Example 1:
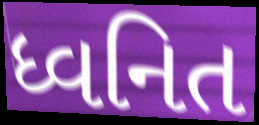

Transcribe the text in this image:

ધ્વનિત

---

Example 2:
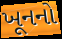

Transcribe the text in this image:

ખૂનનો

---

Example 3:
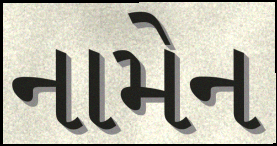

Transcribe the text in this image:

નામેન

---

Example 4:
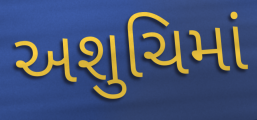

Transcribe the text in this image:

અશુચિમાં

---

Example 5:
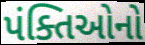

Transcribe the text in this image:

પંક્તિઓનો